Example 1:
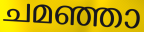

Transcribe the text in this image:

ചമഞ്ഞാ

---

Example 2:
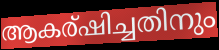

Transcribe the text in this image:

ആകര്ഷിച്ചതിനും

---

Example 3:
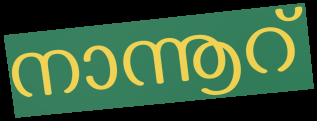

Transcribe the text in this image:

നാന്നൂറ്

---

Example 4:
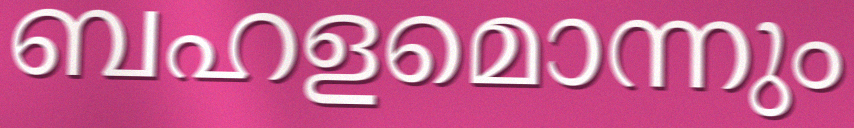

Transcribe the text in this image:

ബഹളമൊന്നും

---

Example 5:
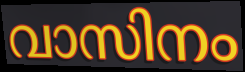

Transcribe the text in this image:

വാസിനം